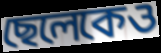
ছেলেকেও